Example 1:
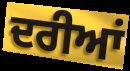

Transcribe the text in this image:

ਦਰੀਆਂ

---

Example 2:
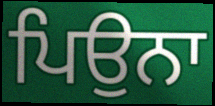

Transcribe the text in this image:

ਪਿਉਨਾ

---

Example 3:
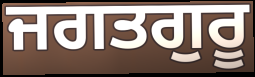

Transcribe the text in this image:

ਜਗਤਗੁਰੂ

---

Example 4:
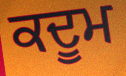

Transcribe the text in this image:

ਕਦੂਮ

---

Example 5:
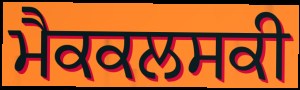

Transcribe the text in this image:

ਮੈਕਕਲਸਕੀ